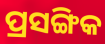
ପ୍ରସଙ୍ଗିକ